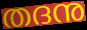
തദനു